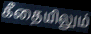
கீதையிலும்